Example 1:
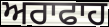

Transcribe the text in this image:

ਅਰਾਫਾਹ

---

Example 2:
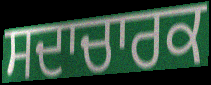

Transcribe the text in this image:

ਸਦਾਚਾਰਕ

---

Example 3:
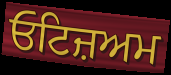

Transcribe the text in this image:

ਓਟਿਜ਼ਅਮ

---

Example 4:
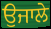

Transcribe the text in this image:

ਉਜਾਲੇ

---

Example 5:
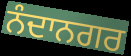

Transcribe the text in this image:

ਨੰਦਾਨਗਰ